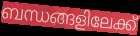
ബന്ധങ്ങളിലേക്ക്